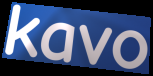
kavo